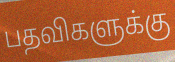
பதவிகளுக்கு